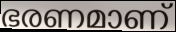
ഭരണമാണ്